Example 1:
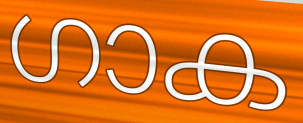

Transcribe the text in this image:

ഗാക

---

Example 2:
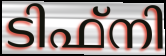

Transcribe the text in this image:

ടിഫ്നി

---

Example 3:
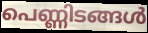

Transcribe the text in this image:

പെണ്ണിടങ്ങൾ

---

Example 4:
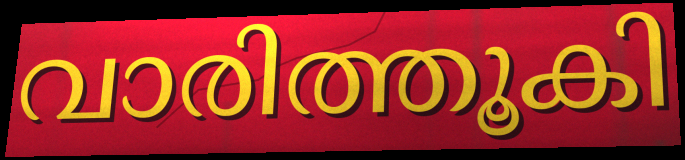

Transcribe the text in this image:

വാരിത്തൂകി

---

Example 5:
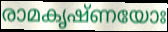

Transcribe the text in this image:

രാമകൃഷ്ണയോഃ